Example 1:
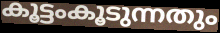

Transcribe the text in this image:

കൂട്ടംകൂടുന്നതും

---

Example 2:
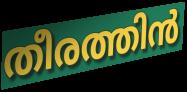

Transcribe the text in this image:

തീരത്തിൻ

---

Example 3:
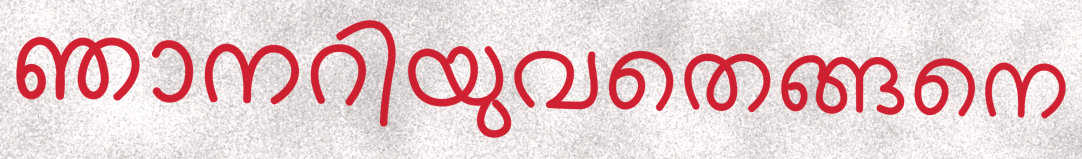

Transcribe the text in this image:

ഞാനറിയുവതെങ്ങനെ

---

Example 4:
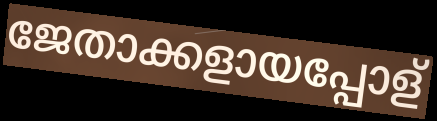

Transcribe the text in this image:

ജേതാക്കളായപ്പോള്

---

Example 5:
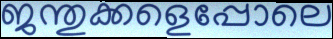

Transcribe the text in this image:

ജന്തുക്കളെപ്പോലെ